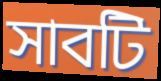
সাবটি